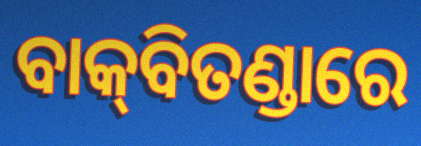
ବାକ୍‌ବିତଣ୍ଡାରେ